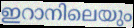
ഇറാനിലെയും